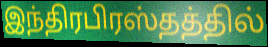
இந்திரபிரஸ்தத்தில்